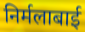
निर्मलाबाई